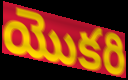
యొకరి